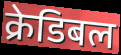
क्रेडिबल